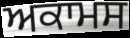
ਅਕਾਮਸ